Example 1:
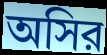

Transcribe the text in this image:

অসির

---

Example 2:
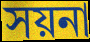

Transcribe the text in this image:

সয়না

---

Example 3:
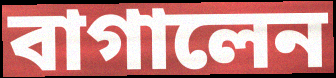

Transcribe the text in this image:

বাগালেন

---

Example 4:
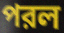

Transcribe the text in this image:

পরল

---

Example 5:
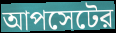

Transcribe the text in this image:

আপসেটের